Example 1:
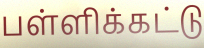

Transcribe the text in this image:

பள்ளிக்கட்டு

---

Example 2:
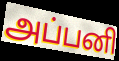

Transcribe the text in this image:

அப்பனி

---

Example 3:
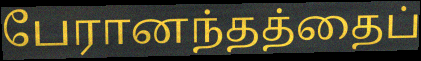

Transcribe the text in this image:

பேரானந்தத்தைப்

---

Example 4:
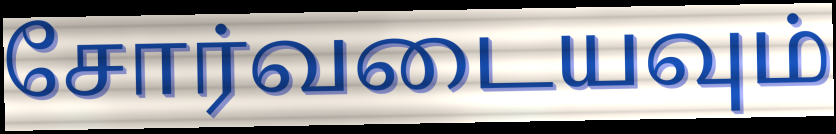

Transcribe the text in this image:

சோர்வடையவும்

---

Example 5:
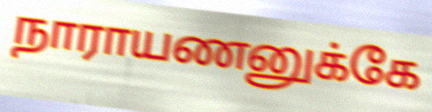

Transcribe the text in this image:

நாராயணனுக்கே